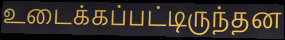
உடைக்கப்பட்டிருந்தன